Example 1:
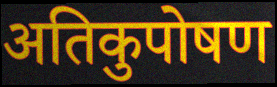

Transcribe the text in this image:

अतिकुपोषण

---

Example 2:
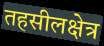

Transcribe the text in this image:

तहसीलक्षेत्र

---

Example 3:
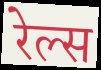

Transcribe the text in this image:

रेल्स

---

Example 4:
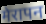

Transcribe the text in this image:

मेरापन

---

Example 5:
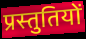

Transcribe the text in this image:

प्रस्तुतियों